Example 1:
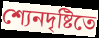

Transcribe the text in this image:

শ্যেনদৃষ্টিতে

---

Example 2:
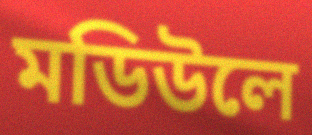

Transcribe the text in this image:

মডিউলে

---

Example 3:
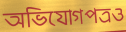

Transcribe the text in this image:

অভিযোগপত্রও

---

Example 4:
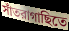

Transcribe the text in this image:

সাঁতরাগাছিতে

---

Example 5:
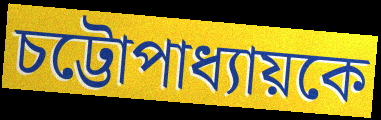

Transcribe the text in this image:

চট্টোপাধ্যায়কে